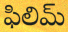
ఫిలిమ్